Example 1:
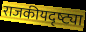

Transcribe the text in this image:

राजकीयदृष्ट्या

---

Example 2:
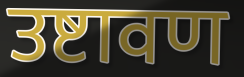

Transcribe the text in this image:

उष्टावण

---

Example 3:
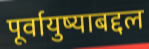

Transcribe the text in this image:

पूर्वायुष्याबद्दल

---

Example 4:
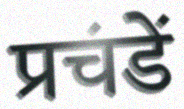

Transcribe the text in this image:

प्रचंडें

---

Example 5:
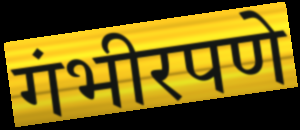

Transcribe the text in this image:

गंभीरपणे